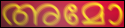
അമോ